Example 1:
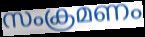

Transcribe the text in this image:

സംക്രമണം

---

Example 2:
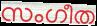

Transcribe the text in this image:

സംഗീത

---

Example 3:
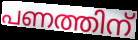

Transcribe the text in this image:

പണത്തിന്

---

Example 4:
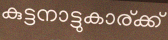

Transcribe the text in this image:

കുട്ടനാട്ടുകാര്ക്ക്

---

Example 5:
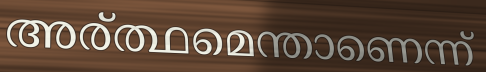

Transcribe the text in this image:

അര്ത്ഥമെന്താണെന്ന്